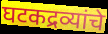
घटकद्रव्यांचे